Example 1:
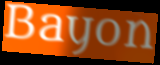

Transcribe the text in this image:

Bayon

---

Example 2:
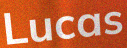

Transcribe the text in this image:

Lucas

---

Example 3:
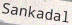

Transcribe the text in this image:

Sankadal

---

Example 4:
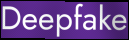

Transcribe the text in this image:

Deepfake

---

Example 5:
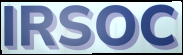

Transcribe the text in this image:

IRSOC